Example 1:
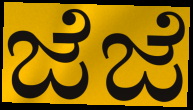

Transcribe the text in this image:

ಜೆಜೆ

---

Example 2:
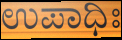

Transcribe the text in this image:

ಉಪಾಧಿಃ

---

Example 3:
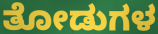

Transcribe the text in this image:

ತೋಡುಗಳ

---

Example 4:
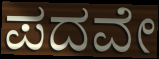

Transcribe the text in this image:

ಪದವೇ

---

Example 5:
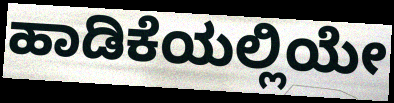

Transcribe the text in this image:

ಹಾಡಿಕೆಯಲ್ಲಿಯೇ